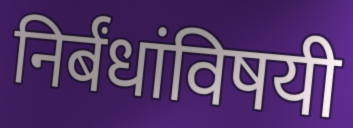
निर्बंधांविषयी